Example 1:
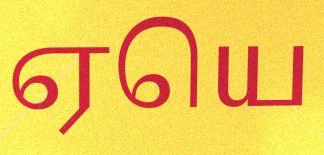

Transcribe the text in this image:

ஏயெ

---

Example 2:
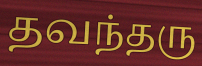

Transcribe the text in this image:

தவந்தரு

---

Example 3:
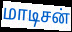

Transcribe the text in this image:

மாடிசன்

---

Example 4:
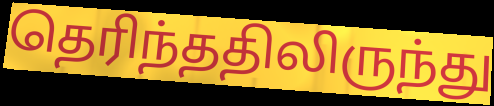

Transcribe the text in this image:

தெரிந்ததிலிருந்து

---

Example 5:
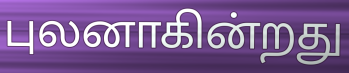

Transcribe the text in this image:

புலனாகின்றது